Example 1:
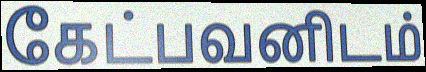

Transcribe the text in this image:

கேட்பவனிடம்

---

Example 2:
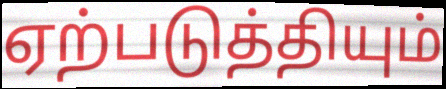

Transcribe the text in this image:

ஏற்படுத்தியும்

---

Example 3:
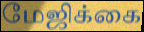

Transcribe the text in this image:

மேஜிக்கை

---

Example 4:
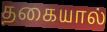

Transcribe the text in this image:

தகையால்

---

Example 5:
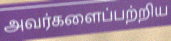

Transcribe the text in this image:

அவர்களைப்பற்றிய